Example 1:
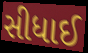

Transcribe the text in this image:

સીધાઈ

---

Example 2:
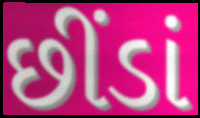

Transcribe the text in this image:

છીંડાં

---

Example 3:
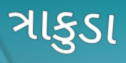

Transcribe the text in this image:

ત્રાકુડા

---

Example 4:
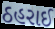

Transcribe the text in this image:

ઠહરાઈ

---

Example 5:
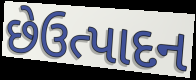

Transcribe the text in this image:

છેઉત્પાદન